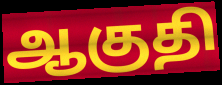
ஆகுதி